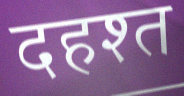
दहश्त